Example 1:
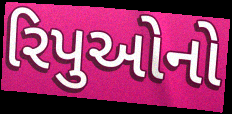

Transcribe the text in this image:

રિપુઓનો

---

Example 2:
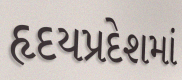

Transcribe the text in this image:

હૃદયપ્રદેશમાં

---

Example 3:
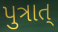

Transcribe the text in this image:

પુત્રાત્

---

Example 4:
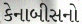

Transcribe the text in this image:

કેનાબીસનો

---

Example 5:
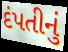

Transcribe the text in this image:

દંપતીનું